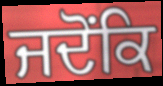
ਜਦੋਂਕਿ